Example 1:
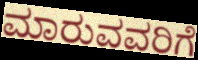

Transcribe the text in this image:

ಮಾರುವವರಿಗೆ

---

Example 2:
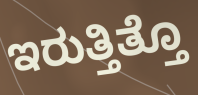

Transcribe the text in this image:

ಇರುತ್ತಿತ್ತೊ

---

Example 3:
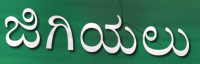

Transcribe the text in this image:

ಜಿಗಿಯಲು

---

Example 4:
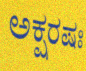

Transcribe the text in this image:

ಅಕ್ಷರಷಃ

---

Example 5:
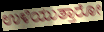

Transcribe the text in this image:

ಉಳಿಯುತ್ತಾರೋ